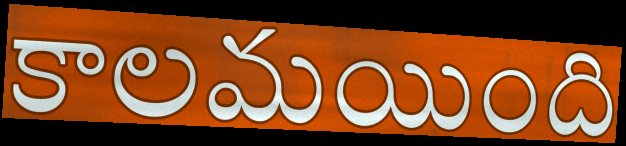
కాలమయింది